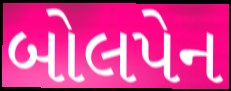
બોલપેન